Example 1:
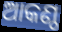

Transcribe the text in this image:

ଆକଣ୍ଠ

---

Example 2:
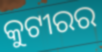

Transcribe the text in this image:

କୁଟୀରର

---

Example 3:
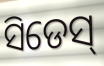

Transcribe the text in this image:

ସିଡେସ୍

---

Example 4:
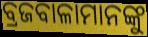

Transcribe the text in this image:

ବ୍ରଜବାଳାମାନଙ୍କୁ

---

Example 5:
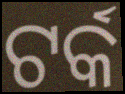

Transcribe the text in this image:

ଟର୍କ